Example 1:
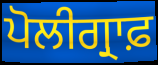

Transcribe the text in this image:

ਪੋਲੀਗ੍ਰਾਫ਼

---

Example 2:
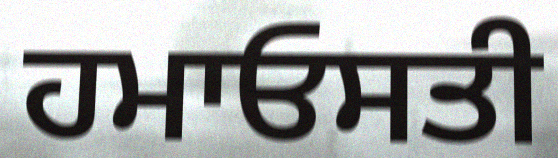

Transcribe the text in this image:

ਹਮਾਓਸਤੀ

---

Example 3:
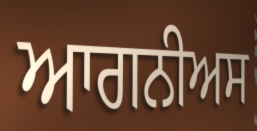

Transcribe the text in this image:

ਆਗਨੀਅਸ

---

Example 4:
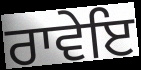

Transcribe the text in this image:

ਰਾਵੇਇ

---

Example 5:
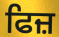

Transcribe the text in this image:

ਫਿਜ਼